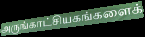
அருங்காட்சியகங்களைக்